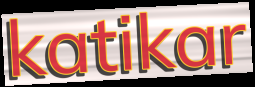
katikar